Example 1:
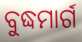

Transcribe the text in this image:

ବୁଦ୍ଧମାର୍ଗ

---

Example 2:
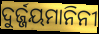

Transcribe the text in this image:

ଦୁର୍ଜ୍ଜୟମାନିନୀ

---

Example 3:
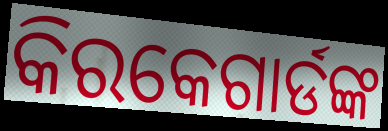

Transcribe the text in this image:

କିରକେଗାର୍ଡଙ୍କ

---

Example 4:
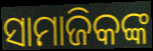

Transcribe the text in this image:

ସାମାଜିକଙ୍କ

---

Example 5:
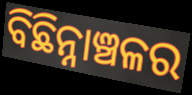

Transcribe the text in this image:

ବିଛିନ୍ନାଞ୍ଚଳର